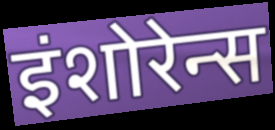
इंशोरेन्स